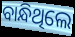
ବାନ୍ଧିଥିଲେ